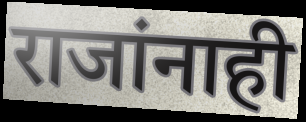
राजांनाही